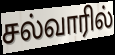
சல்வாரில்